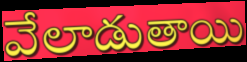
వేలాడుతాయి